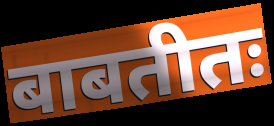
बाबतीतः